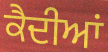
ਕੈਦੀਆਂ